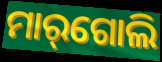
ମାର୍‌ଗୋଲି